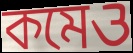
কমেও